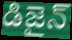
డిజైన్